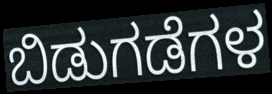
ಬಿಡುಗಡೆಗಳ